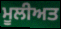
ਮੂਲੀਅਤ